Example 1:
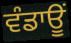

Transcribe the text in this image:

ਵੰਡਾਊਂ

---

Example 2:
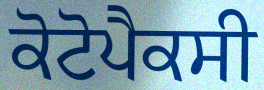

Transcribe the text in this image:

ਕੋਟੋਪੈਕਸੀ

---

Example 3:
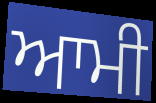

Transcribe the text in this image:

ਆਮੀ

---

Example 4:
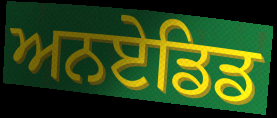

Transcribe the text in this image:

ਅਨਏਡਿਡ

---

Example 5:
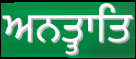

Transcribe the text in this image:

ਅਨਤ੍ਤਾਤਿ